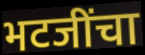
भटजींचा